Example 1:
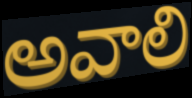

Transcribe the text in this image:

అవాలి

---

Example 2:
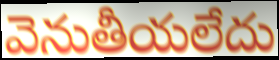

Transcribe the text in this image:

వెనుతీయలేదు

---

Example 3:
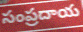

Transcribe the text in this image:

సంప్రదాయ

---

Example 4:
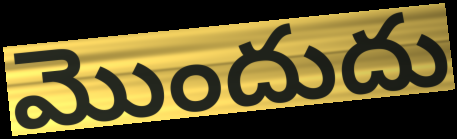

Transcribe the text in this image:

మొందుదు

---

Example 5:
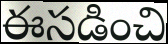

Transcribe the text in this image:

ఈసడించి